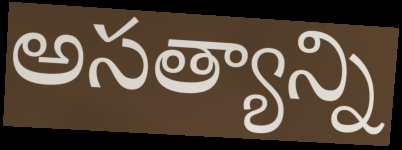
అసత్యాన్ని